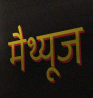
मैथ्‍यूज